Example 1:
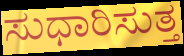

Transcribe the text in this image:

ಸುಧಾರಿಸುತ್ತ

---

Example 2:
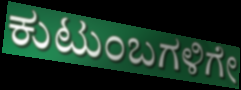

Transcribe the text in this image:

ಕುಟುಂಬಗಳಿಗೇ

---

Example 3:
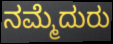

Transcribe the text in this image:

ನಮ್ಮೆದುರು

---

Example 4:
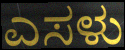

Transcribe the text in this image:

ಎಸಳು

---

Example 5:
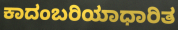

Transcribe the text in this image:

ಕಾದಂಬರಿಯಾಧಾರಿತ